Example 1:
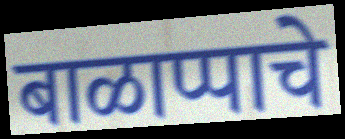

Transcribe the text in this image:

बाळाप्पाचे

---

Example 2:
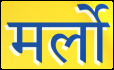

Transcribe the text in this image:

मर्लो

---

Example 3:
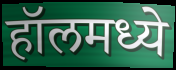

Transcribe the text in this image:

हॉलमध्ये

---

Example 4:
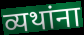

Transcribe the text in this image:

व्यथांना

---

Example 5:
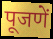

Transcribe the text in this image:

पूजणें